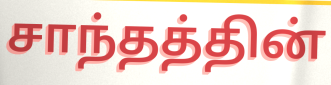
சாந்தத்தின்